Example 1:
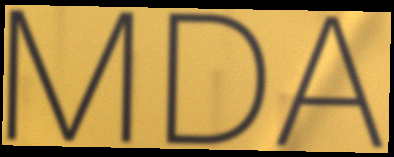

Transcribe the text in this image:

MDA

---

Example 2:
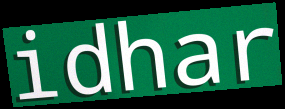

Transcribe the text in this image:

idhar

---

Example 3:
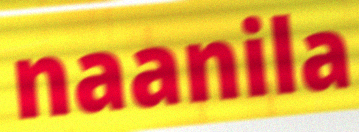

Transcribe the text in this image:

naanila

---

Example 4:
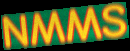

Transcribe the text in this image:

NMMS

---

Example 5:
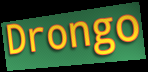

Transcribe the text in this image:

Drongo